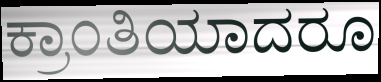
ಕ್ರಾಂತಿಯಾದರೂ